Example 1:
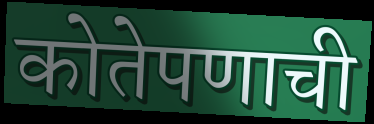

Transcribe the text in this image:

कोतेपणाची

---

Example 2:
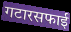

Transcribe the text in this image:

गटारसफाई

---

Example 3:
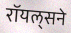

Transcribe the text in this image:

रॉयल्सने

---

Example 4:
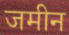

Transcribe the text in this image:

जमीन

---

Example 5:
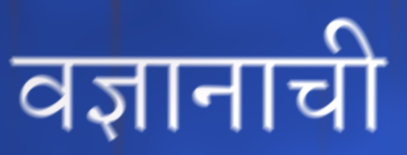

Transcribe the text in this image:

वज्ञानाची